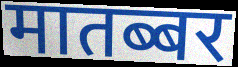
मातब्बर